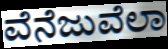
ವೆನೆಜುವೆಲಾ